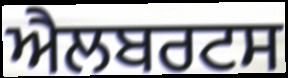
ਐਲਬਰਟਸ